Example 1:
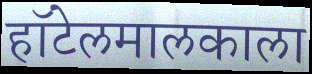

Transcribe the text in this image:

हॉटेलमालकाला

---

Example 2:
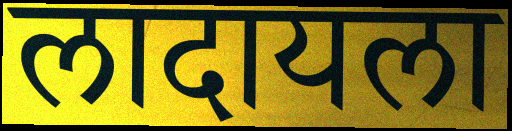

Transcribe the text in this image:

लादायला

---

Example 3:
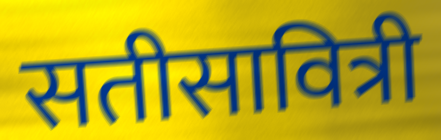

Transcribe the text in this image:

सतीसावित्री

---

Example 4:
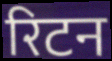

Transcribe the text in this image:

रिटन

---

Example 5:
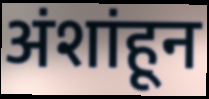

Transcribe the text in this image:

अंशांहून